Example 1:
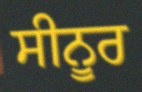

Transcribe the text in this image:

ਸੀਨੂਰ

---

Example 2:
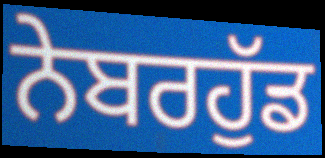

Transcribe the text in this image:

ਨੇਬਰਹੁੱਡ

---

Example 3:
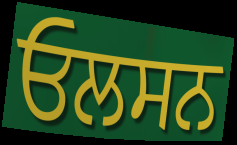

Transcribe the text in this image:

ਓਲਸਨ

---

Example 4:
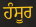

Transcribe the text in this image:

ਹੰਸੂਰ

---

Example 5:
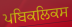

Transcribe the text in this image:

ਪਬਿਕਲਿਕਸ